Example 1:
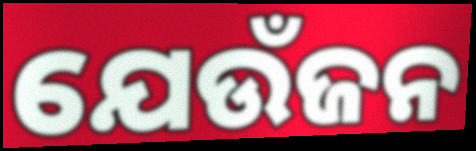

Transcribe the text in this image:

ଯେଉଁଜନ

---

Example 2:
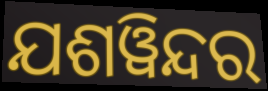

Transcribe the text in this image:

ଯଶୱିନ୍ଦର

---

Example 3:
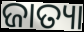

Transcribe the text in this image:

ଜାତ୍ୟା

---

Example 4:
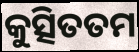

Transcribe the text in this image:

କୁତ୍ସିତତମ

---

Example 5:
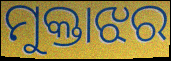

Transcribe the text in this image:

ମୁକ୍ତାଝର